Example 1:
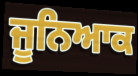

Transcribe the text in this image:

ਜੂਨਿਆਕ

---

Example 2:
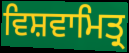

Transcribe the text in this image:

ਵਿਸ਼ਵਾਮਿਤ੍ਰ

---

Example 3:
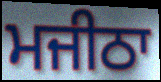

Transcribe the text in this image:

ਮਜੀਠਾ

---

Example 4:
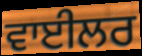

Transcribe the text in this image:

ਵਾਈਲਰ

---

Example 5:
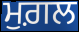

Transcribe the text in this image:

ਮੁਗ਼ਲ